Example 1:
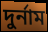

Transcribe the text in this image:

দুৰ্নাম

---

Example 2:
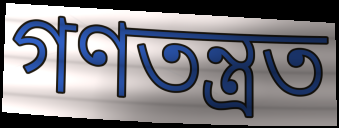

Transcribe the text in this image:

গণতন্ত্ৰত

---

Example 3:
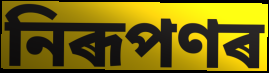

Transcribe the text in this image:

নিৰূপণৰ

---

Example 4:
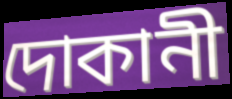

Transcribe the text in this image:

দোকানী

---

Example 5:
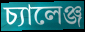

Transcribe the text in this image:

চ্যালেঞ্জ